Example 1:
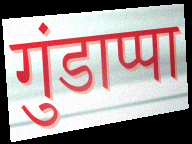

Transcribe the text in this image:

गुंडाप्पा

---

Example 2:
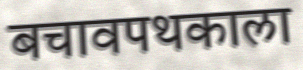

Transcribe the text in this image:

बचावपथकाला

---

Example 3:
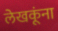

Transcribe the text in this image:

लेखकूंना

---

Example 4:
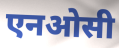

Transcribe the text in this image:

एनओसी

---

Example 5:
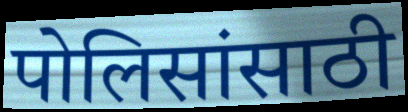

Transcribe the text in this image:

पोलिसांसाठी